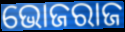
ଭୋଜରାଜ